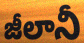
జీలానీ